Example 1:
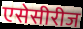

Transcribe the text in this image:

एसेसीरीज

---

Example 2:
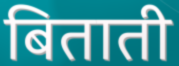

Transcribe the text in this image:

बिताती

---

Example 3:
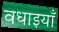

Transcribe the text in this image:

वधाइयाँ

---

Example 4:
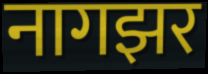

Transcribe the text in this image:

नागझर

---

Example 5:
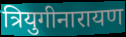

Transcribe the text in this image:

त्रियुगीनारायण